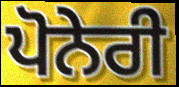
ਪੋਨੇਰੀ